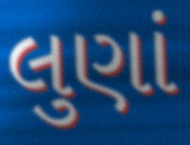
લુણાં